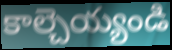
కాల్చెయ్యండి